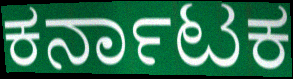
ಕರ್ನಾಟಕ